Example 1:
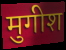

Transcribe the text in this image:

मुगीश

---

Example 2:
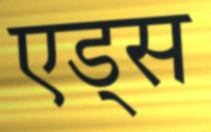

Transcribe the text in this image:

एड्स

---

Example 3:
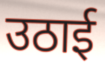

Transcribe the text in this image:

उठाई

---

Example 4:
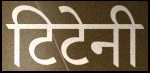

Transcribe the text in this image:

टिटेनी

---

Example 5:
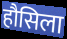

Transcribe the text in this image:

हौसिला